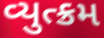
વ્યુત્ક્રમ